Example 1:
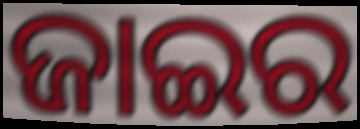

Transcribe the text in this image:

ଜାଇର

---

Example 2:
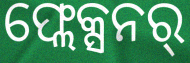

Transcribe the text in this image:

ଫ୍ଲେକ୍ସନର୍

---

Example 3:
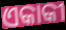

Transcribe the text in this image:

ଏକାକୀ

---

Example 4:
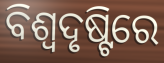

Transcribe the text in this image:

ବିଶ୍ଵଦୃଷ୍ଟିରେ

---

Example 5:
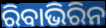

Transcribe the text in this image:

ରିବାଭିରିନ